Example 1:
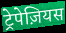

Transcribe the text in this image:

ट्रेपेज़ियस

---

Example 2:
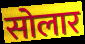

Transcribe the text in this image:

सोलार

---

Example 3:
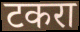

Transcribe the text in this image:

टकरा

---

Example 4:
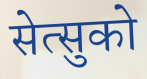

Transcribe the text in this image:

सेत्सुको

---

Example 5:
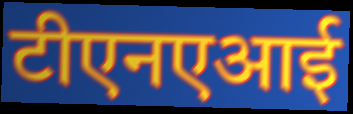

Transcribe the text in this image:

टीएनएआई